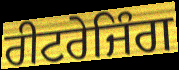
ਰੀਟਰੇਜਿੰਗ